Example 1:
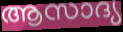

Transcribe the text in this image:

ആസാദ്യ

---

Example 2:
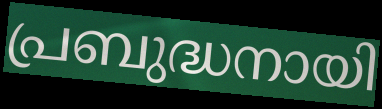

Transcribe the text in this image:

പ്രബുദ്ധനായി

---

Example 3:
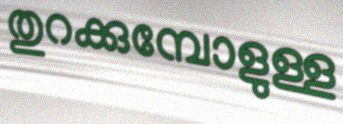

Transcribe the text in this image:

തുറക്കുമ്പോളുള്ള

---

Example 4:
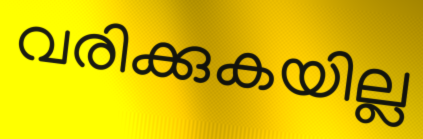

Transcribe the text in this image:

വരിക്കുകയില്ല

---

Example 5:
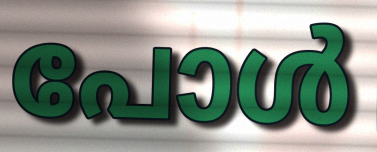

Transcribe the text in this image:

പോൾ